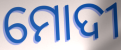
ମୋଦୀ